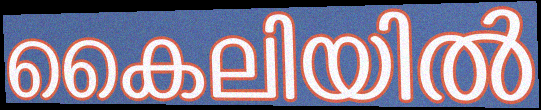
കൈലിയിൽ